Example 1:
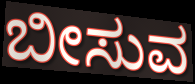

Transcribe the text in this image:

ಬೀಸುವ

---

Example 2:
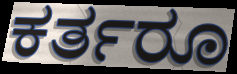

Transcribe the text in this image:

ಕರ್ತರೂ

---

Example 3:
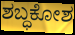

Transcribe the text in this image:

ಶಬ್ಧಕೋಶ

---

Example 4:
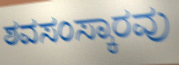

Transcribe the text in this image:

ಶವಸಂಸ್ಕಾರವು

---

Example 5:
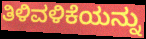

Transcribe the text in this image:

ತಿಳಿವಳಿಕೆಯನ್ನು